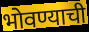
भोवण्याची